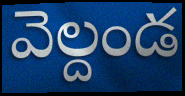
వెల్దండ